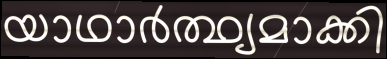
യാഥാർത്ഥ്യമാക്കി